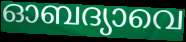
ഓബദ്യാവെ